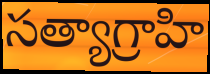
సత్యాగ్రాహి